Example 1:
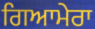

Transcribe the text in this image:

ਗਿਆਮੇਰਾ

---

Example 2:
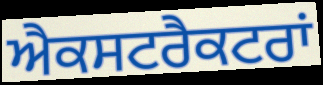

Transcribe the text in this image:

ਐਕਸਟਰੈਕਟਰਾਂ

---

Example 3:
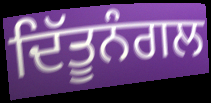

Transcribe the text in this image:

ਦਿੱਤੂਨੰਗਲ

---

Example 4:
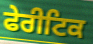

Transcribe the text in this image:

ਫੇਰੀਟਿਕ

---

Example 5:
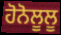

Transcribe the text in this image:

ਹੋਨੋਲੂਲੂ